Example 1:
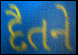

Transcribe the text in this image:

દૈતને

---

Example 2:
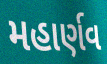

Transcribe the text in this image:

મહાર્ણવ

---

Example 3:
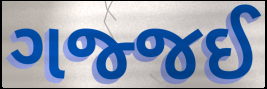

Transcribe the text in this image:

ગજ્જઈ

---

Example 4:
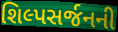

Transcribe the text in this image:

શિલ્પસર્જનની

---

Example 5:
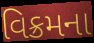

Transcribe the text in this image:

વિક્રમના